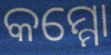
କମ୍ମୋ